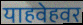
याहवेहवर